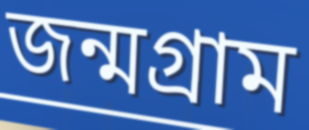
জন্মগ্রাম